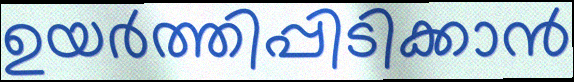
ഉയർത്തിപ്പിടിക്കാൻ